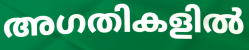
അഗതികളിൽ